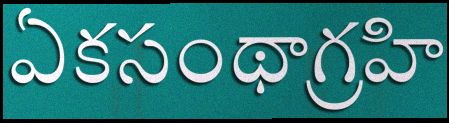
ఏకసంథాగ్రహి